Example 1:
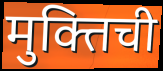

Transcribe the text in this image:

मुक्तिची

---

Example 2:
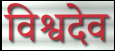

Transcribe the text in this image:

विश्वदेव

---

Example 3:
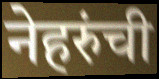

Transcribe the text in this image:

नेहरुंची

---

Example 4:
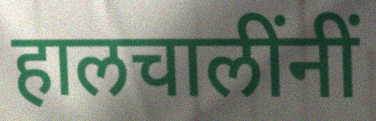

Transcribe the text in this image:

हालचालींनीं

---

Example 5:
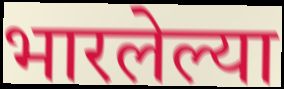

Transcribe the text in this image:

भारलेल्या